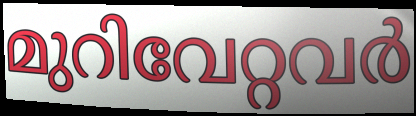
മുറിവേറ്റവർ